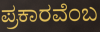
ಪ್ರಕಾರವೆಂಬ